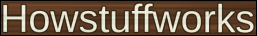
Howstuffworks